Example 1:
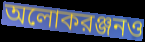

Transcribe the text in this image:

অলোকরঞ্জনও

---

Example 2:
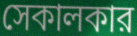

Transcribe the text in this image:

সেকালকার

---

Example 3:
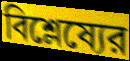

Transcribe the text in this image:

বিশ্লেষ্যের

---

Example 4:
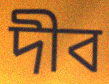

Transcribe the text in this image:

দীব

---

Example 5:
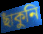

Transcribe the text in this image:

ছাঁকুনি